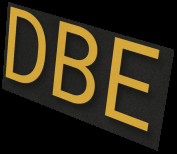
DBE